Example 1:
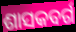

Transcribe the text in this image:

ଶାସକବର୍ଗ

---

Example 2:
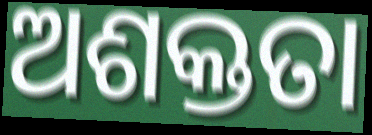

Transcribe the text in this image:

ଅଶକ୍ତତା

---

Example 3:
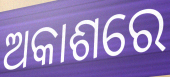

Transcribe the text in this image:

ଅକାଶରେ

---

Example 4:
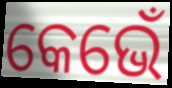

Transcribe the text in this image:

କେଭେଁ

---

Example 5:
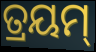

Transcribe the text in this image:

ତ୍ରୟମ୍